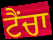
ਟੈਂਚਾ